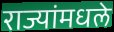
राज्यांमधले